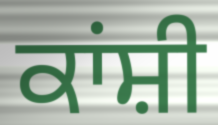
ਕਾਂਸ਼ੀ